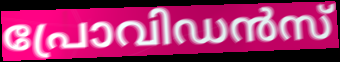
പ്രോവിഡൻസ്